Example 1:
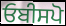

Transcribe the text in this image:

ਓਬੀਸਪੋ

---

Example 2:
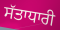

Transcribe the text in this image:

ਸੱਤਾਧਾਰੀ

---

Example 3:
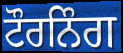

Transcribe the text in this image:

ਟੌਰਨਿੰਗ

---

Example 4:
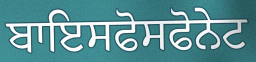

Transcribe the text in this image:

ਬਾਇਸਫੋਸਫੋਨੇਟ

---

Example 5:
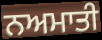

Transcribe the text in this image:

ਨਅਮਾਤੀ